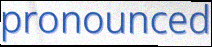
pronounced